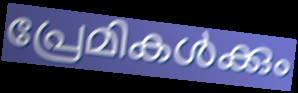
പ്രേമികൾക്കും